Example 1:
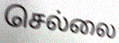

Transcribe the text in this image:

செல்லை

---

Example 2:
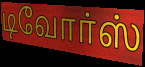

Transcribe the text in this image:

டிவோர்ஸ்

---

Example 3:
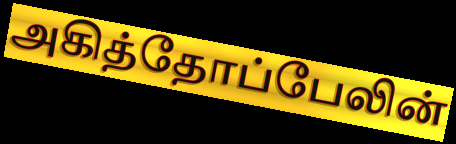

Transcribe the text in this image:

அகித்தோப்பேலின்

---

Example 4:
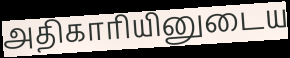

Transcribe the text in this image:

அதிகாரியினுடைய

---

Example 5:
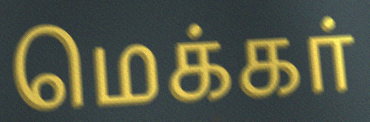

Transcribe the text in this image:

மெக்கர்